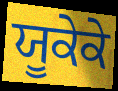
ਯੂਕੇਕੇ